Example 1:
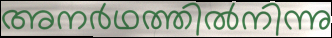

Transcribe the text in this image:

അനർഥത്തിൽനിന്നു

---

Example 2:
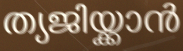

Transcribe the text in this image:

ത്യജിയ്ക്കാൻ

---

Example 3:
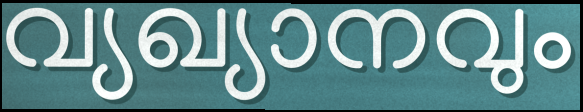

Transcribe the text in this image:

വ്യഖ്യാനവും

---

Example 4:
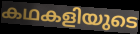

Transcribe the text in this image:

കഥകളിയുടെ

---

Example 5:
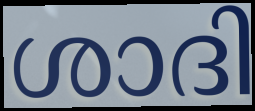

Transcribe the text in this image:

ശാദി